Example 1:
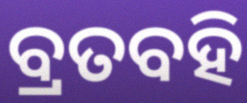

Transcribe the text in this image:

ବ୍ରତବହି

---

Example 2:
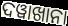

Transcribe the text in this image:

ଦୱାଖାନା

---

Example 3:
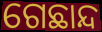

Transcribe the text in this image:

ଗେଛାନ୍ଦ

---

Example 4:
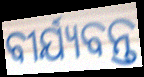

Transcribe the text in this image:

ବୀର୍ଯ୍ୟବନ୍ତ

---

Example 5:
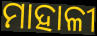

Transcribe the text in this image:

ମାହାଳୀ